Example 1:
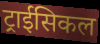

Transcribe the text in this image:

ट्राईसिकल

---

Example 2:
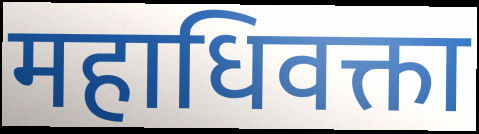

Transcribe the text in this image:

महाधिवक्ता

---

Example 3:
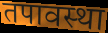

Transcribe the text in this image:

तपावस्था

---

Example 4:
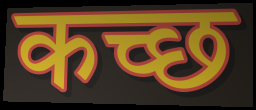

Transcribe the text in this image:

कच्छ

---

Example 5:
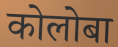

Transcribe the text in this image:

कोलोबा